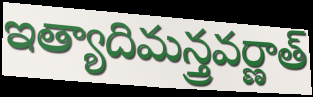
ఇత్యాదిమన్త్రవర్ణాత్